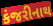
કંજરીનાથ